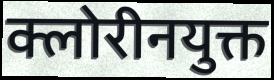
क्लोरीनयुक्त